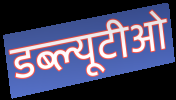
डब्ल्यूटीओ